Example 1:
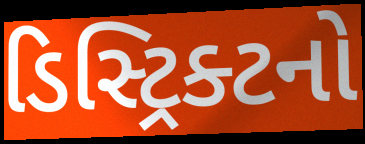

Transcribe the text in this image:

ડિસ્ટ્રિક્ટનો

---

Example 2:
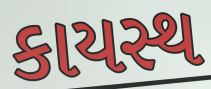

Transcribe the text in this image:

કાયસ્થ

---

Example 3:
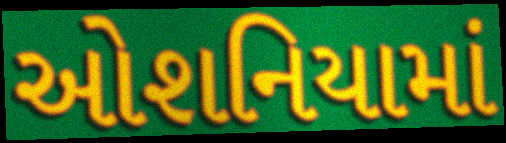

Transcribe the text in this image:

ઓશનિયામાં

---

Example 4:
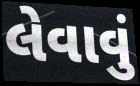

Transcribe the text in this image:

લેવાવું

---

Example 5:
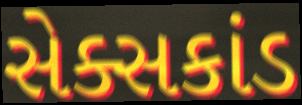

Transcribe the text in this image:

સેક્સકાંડ